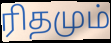
ரிதமும்